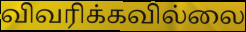
விவரிக்கவில்லை